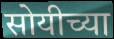
सोयीच्या